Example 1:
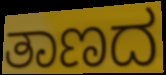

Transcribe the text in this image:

ತಾಣದ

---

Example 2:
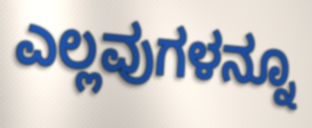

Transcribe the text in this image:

ಎಲ್ಲವುಗಳನ್ನೂ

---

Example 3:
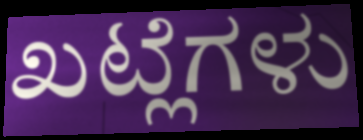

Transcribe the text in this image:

ಖಟ್ಲೆಗಳು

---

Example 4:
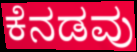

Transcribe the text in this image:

ಕೆನಡವು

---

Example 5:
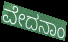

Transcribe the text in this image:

ವೇದನಾಂ